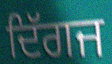
ਦਿੱਗਜ